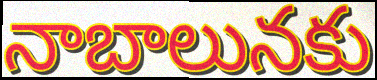
నాబాలునకు